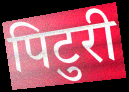
पिटुरी